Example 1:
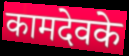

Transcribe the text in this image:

कामदेवके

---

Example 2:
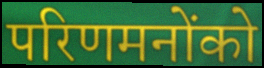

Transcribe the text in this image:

परिणमनोंको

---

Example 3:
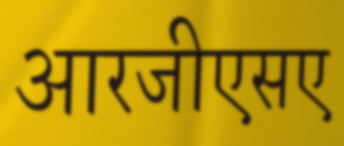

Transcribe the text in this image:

आरजीएसए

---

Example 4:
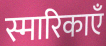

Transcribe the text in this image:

स्मारिकाएँ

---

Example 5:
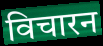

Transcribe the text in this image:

विचारन